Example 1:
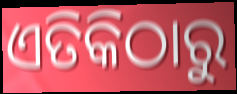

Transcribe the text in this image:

ଏତିକିଠାରୁ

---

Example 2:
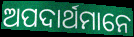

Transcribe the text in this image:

ଅପଦାର୍ଥମାନେ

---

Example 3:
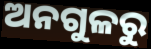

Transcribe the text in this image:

ଅନଗୁଳରୁ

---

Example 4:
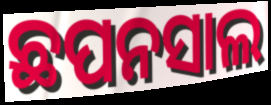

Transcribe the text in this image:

ଛପନସାଲ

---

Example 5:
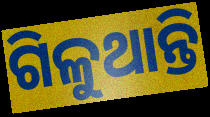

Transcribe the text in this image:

ଗିଳୁଥାନ୍ତି